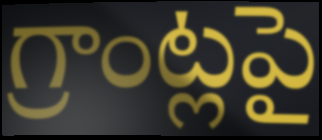
గ్రాంట్లపై